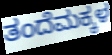
ತಂದೆಮಕ್ಕಳ